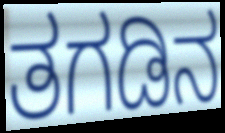
ತಗಡಿನ